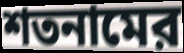
শতনামের